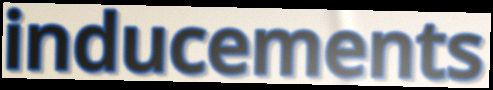
inducements